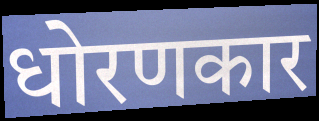
धोरणकार